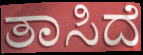
ತಾಸಿದೆ